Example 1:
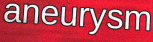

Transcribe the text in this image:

aneurysm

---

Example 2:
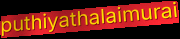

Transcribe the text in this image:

puthiyathalaimurai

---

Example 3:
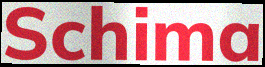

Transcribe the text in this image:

Schima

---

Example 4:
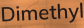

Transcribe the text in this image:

Dimethyl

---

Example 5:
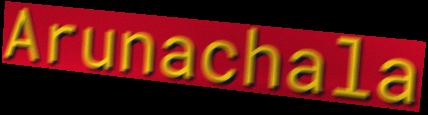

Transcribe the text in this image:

Arunachala